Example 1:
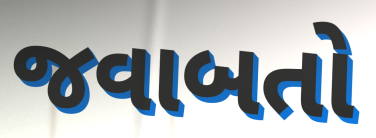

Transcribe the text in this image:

જવાબતો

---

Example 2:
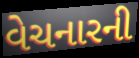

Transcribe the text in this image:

વેચનારની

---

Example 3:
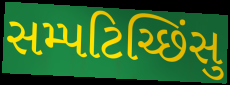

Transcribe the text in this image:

સમ્પટિચ્છિંસુ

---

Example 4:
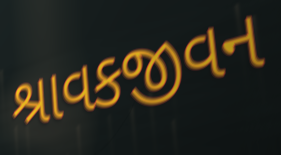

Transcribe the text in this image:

શ્રાવકજીવન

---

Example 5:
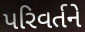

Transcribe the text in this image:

પરિવર્તને